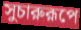
সুচারুরূপে